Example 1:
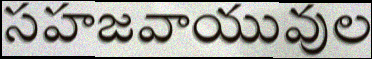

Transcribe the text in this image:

సహజవాయువుల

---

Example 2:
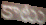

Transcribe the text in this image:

కాటు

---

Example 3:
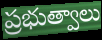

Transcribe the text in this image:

ప్రభుత్వాలు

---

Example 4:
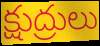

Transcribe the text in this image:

క్షుద్రులు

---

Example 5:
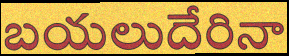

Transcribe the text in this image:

బయలుదేరినా